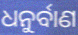
ଧନୁର୍ବାଣ